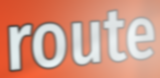
route